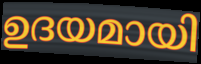
ഉദയമായി